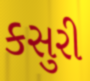
કસુરી